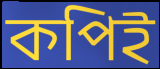
কপিই